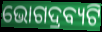
ଭୋଗଦ୍ରବ୍ୟଟି